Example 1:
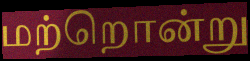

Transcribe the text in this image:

மற்றொன்று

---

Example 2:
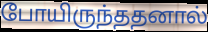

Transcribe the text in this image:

போயிருந்ததனால்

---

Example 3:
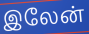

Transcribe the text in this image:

இலேன்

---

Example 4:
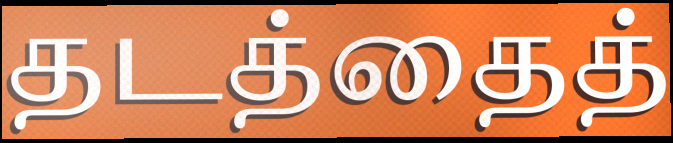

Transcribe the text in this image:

தடத்தைத்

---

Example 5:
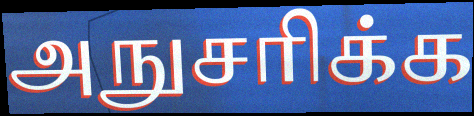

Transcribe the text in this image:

அநுசரிக்க